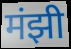
मंझी